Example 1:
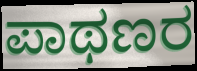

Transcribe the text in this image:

ಪಾಥಣರ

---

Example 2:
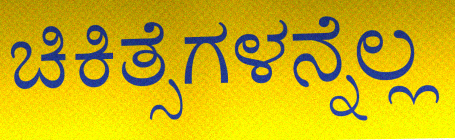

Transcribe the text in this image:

ಚಿಕಿತ್ಸೆಗಳನ್ನೆಲ್ಲ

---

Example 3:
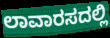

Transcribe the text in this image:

ಲಾವಾರಸದಲ್ಲಿ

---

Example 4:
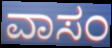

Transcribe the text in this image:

ವಾಸಂ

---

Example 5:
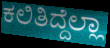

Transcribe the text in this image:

ಕಲಿತಿದ್ದೆಲ್ಲಾ